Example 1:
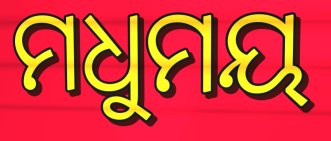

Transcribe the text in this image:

ମଧୁମୟ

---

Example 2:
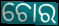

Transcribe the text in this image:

ଚୋର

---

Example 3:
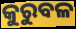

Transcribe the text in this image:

କୁରୁବଳ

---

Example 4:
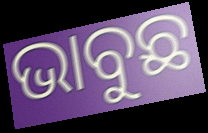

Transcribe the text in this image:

ଭାବୁଛ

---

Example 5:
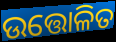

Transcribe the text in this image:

ଉତ୍ତୋଳିତ